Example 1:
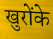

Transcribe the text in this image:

खुरोंके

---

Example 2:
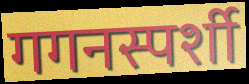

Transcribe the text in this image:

गगनस्पर्शी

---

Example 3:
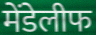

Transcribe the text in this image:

मेंडेलीफ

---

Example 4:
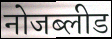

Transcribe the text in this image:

नोजब्लीड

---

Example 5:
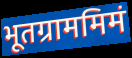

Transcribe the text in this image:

भूतग्राममिमं